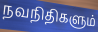
நவநிதிகளும்